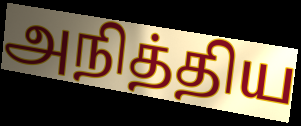
அநித்திய